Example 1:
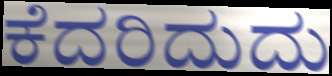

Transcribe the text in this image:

ಕೆದರಿದುದು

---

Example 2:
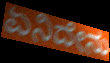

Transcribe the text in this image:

ಏನಿದೇನು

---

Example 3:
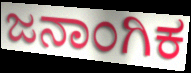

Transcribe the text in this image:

ಜನಾಂಗಿಕ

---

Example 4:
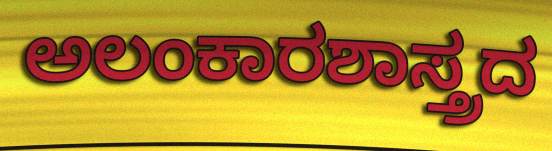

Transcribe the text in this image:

ಅಲಂಕಾರಶಾಸ್ತ್ರದ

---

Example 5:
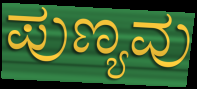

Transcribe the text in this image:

ಪುಣ್ಯವು